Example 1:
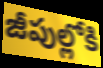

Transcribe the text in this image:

జీపుల్లోకి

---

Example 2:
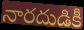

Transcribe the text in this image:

నారదుడికీ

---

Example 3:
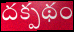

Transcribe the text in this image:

దక్పథం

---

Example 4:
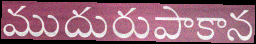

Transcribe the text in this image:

ముదురుపాకాన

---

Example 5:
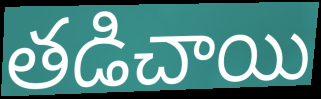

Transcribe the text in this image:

తడిచాయి